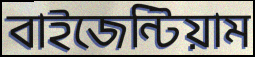
বাইজেন্টিয়াম